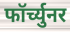
फॉर्च्युनर